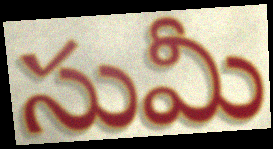
సుమీ